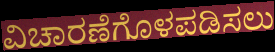
ವಿಚಾರಣೆಗೊಳಪಡಿಸಲು